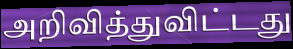
அறிவித்துவிட்டது